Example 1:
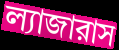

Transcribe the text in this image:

ল্যাজারাস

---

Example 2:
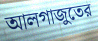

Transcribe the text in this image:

আলগাজুতের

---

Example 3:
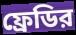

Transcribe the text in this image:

ফ্রেডির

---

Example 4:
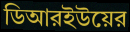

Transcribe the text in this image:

ডিআরইউয়ের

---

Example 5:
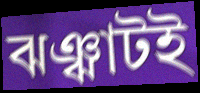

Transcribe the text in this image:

ঝঞ্ঝাটই